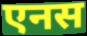
एनस